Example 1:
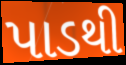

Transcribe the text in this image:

પાડથી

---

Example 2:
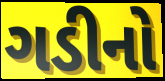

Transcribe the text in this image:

ગડીનો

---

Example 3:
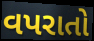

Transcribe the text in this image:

વપરાતો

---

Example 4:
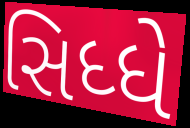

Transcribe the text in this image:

સિધ્ધે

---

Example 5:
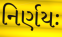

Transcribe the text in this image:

નિર્ણયઃ